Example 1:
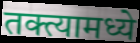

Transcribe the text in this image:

तक्‍त्यामध्ये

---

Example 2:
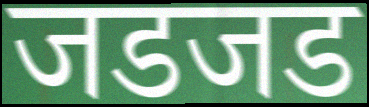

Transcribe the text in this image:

जडजड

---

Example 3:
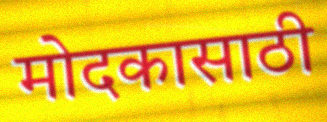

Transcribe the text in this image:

मोदकासाठी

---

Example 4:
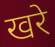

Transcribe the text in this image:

खरे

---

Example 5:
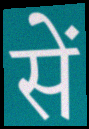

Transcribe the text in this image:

सें